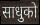
साधुको